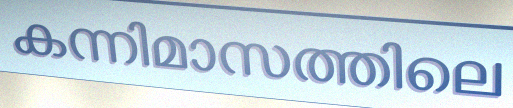
കന്നിമാസത്തിലെ